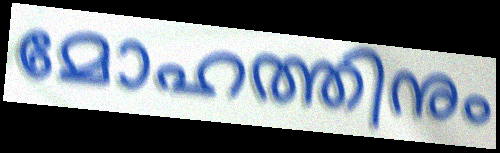
മോഹത്തിനും